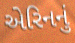
એરિનનું